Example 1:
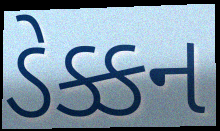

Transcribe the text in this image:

ડેક્કન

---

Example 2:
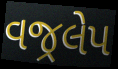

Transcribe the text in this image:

વજ્રલેપ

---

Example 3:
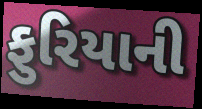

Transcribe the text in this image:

ફુરિયાની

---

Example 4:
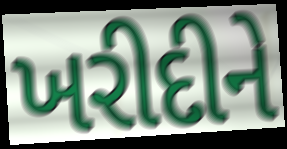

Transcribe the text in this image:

ખરીદીને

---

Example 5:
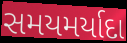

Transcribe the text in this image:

સમયમર્યાદા